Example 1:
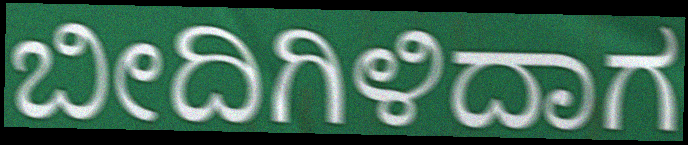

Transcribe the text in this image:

ಬೀದಿಗಿಳಿದಾಗ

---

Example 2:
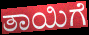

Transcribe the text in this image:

ತಾಯಿಗೆ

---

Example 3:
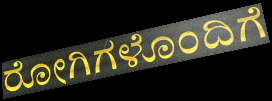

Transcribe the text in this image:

ರೋಗಿಗಳೊಂದಿಗೆ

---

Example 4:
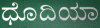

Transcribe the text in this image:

ಧೊದಿಯಾ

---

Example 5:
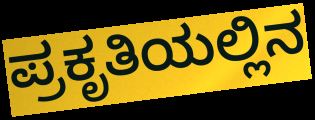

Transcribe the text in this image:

ಪ್ರಕೃತಿಯಲ್ಲಿನ